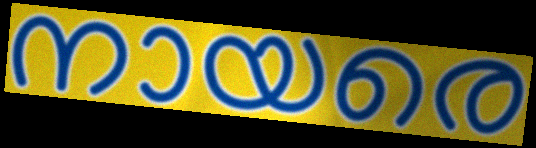
നായരെ